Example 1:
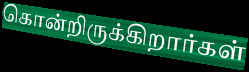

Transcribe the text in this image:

கொன்றிருக்கிறார்கள்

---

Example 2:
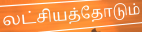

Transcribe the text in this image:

லட்சியத்தோடும்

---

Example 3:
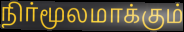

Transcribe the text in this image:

நிர்மூலமாக்கும்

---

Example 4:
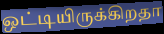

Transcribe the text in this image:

ஒட்டியிருக்கிறதா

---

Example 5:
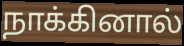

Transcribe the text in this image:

நாக்கினால்